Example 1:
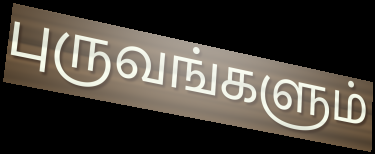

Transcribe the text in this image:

புருவங்களும்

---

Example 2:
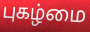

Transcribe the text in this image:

புகழ்மை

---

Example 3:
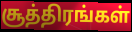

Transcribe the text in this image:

சூத்திரங்கள்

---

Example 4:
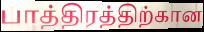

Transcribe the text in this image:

பாத்திரத்திற்கான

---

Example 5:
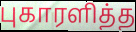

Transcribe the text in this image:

புகாரளித்த